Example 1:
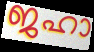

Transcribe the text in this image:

ജഹാ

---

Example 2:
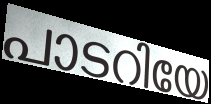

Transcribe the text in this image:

പാടറിയേ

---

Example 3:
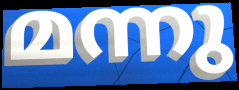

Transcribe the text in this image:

മന്നു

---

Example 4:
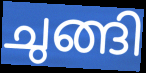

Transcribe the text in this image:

ചുങ്ങി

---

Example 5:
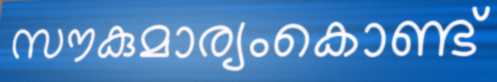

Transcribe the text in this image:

സൗകുമാര്യംകൊണ്ട്